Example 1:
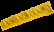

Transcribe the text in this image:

ಬಡಬಡಿಸುತ್ತಾ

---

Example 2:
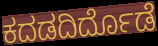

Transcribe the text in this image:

ಕದಡದಿರ್ದೊಡೆ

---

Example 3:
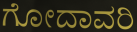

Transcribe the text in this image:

ಗೋದಾವರಿ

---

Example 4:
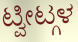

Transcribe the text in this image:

ಟ್ವೀಟ್ಗಳ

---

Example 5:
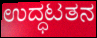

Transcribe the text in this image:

ಉದ್ಧಟತನ